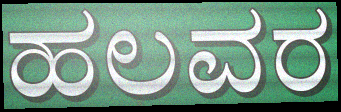
ಹಲವರ